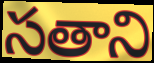
సతాని